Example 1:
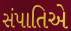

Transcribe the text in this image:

સંપાતિએ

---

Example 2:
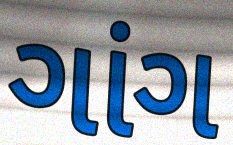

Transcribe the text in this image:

ગાંગ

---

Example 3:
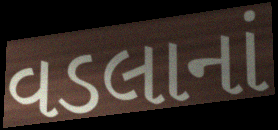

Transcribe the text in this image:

વડલાનાં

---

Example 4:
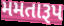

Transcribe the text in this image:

મમતારૂપ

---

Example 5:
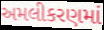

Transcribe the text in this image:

અમલીકરણમાં